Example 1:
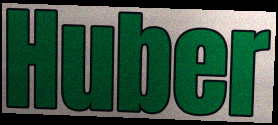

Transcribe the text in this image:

Huber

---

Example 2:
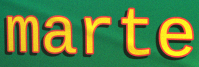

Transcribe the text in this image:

marte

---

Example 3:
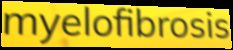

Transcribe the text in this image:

myelofibrosis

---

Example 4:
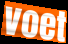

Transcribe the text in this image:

voet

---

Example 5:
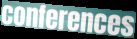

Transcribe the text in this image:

conferences